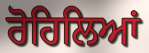
ਰੋਹਿਲਿਆਂ